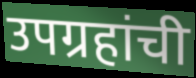
उपग्रहांची